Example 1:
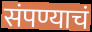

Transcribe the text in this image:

संपण्याचं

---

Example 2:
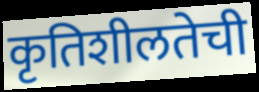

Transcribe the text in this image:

कृतिशीलतेची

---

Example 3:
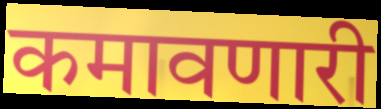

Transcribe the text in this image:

कमावणारी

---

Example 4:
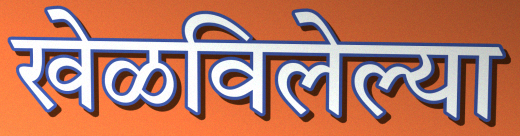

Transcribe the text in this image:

खेळविलेल्या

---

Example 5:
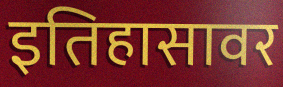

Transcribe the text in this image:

इतिहासावर